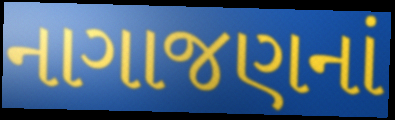
નાગાજણનાં